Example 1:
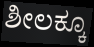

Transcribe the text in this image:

ಶೀಲಕ್ಕೂ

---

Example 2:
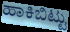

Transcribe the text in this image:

ಹಾಕಿಬಿಟ್ಟು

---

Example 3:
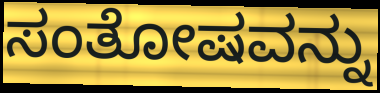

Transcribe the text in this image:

ಸಂತೋಷವನ್ನು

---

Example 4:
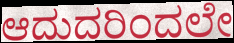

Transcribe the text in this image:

ಆದುದರಿಂದಲೇ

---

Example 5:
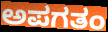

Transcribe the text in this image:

ಅಪಗತಂ